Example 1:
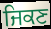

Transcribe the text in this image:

ਜਿਕਣ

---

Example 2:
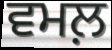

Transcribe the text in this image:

ਵਮਲ਼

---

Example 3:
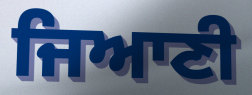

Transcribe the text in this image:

ਜਿਆਣੀ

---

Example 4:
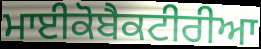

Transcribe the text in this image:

ਮਾਈਕੋਬੈਕਟੀਰੀਆ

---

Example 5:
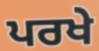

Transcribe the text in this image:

ਪਰਖੇ